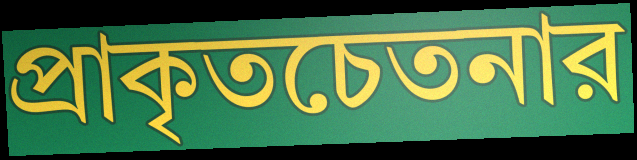
প্রাকৃতচেতনার